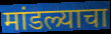
मांडल्याचा